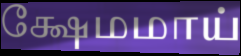
க்ஷேமமாய்